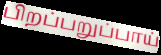
பிறப்பறுப்பாய்